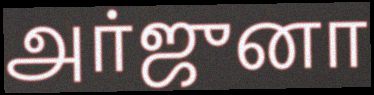
அர்ஜுனா